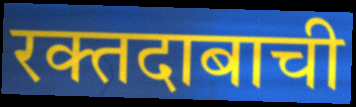
रक्तदाबाची